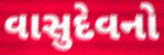
વાસુદેવનો